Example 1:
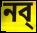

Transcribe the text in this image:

নব্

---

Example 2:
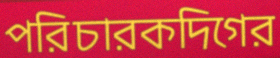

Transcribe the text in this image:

পরিচারকদিগের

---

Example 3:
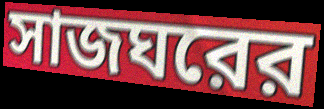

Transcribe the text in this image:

সাজঘরের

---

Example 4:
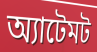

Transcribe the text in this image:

অ্যাটেমট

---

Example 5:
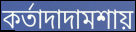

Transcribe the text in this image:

কর্তাদাদামশায়